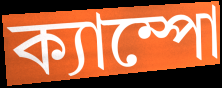
ক্যাম্পো